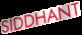
SIDDHANT